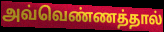
அவ்வெண்ணத்தால்